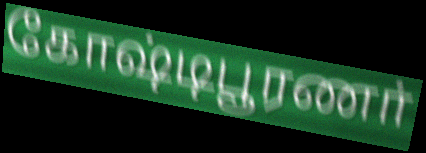
கோஷ்டிபூரணர்